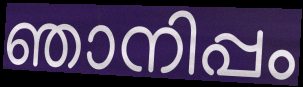
ഞാനിപ്പം